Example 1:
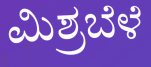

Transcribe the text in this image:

ಮಿಶ್ರಬೆಳೆ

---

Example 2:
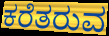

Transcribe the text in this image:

ಕರೆತರುವ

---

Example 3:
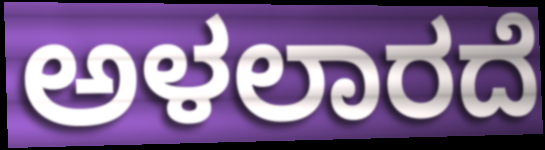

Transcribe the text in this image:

ಅಳಲಾರದೆ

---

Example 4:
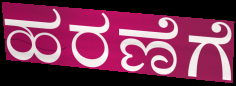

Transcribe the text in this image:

ಹರಣೆಗೆ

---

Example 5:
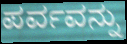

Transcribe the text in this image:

ಪರ್ವವನ್ನು